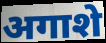
अगाशे